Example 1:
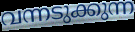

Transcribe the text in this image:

വന്നടുക്കുന്ന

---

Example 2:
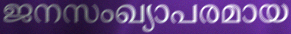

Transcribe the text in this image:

ജനസംഖ്യാപരമായ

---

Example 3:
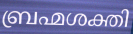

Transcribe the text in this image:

ബ്രഹ്മശക്തി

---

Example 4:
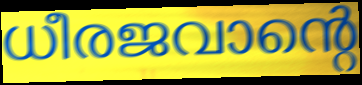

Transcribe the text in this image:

ധീരജവാന്റെ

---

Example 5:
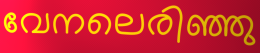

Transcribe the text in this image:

വേനലെരിഞ്ഞു